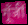
गूँजीं